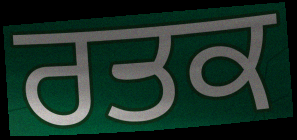
ਰਤਕ